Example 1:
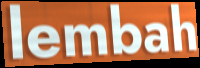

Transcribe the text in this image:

lembah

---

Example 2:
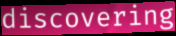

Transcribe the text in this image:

discovering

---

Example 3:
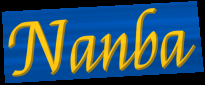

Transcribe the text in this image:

Nanba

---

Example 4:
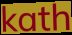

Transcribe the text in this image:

kath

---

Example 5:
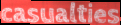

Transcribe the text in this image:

casualties